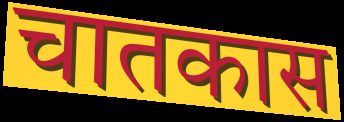
चातकास